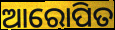
ଆରୋପିତ